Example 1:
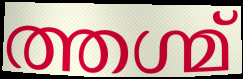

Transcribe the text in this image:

ത്തഗ്മ്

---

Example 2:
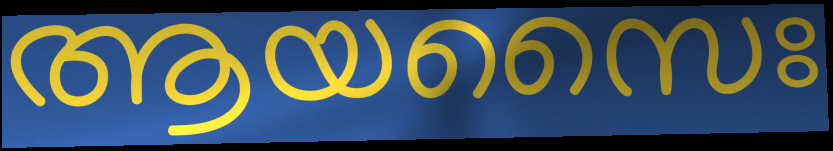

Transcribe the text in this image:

ആയസൈഃ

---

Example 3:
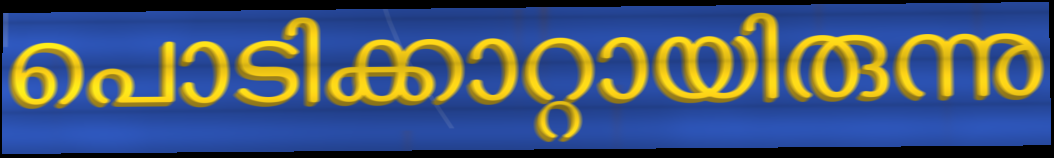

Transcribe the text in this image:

പൊടിക്കാറ്റായിരുന്നു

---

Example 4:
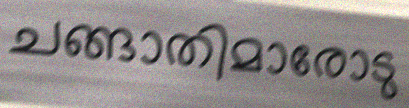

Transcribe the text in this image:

ചങ്ങാതിമാരോടു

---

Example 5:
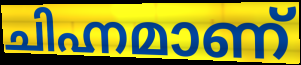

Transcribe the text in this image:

ചിഹ്നമാണ്